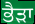
ਭੈੜਾ